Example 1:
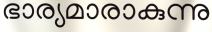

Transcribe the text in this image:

ഭാര്യമാരാകുന്നു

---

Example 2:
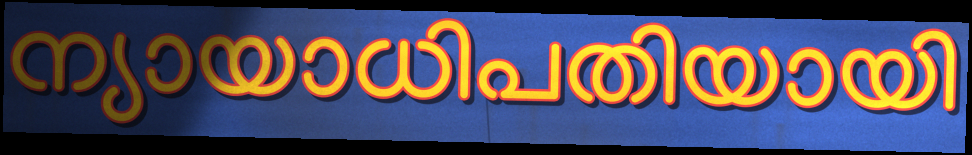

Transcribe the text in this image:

ന്യായാധിപതിയായി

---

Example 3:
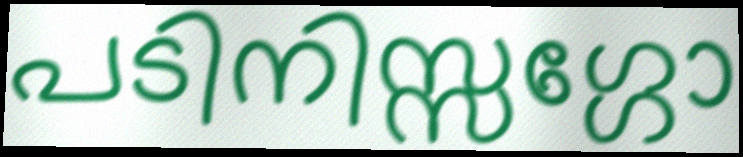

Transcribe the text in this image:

പടിനിസ്സഗ്ഗോ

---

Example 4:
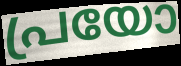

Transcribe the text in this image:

പ്രയോ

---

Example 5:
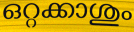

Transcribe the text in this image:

ഒറ്റക്കാശും